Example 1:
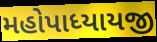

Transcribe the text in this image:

મહોપાધ્યાયજી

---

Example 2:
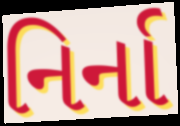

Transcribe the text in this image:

નિર્ના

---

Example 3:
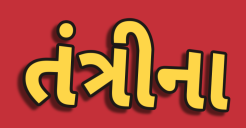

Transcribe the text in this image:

તંત્રીના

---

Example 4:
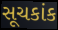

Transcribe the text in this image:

સૂચકાંક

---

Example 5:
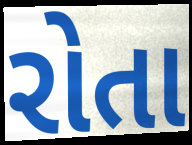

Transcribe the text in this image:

રોતા